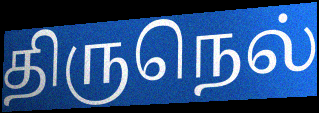
திருநெல்